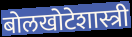
बोलखोटेशास्त्री